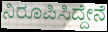
ನಿರೂಪಿಸಿದ್ದೇನೆ